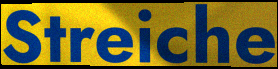
Streiche